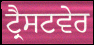
ਟ੍ਰੈਸਟਵੇਰ